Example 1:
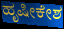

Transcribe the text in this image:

ಹೃಷೀಕೇಶ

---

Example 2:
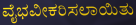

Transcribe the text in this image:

ವೈಭವೀಕರಿಸಲಾಯಿತು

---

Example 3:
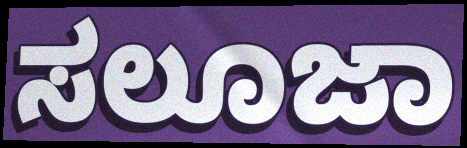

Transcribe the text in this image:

ಸಲೂಜಾ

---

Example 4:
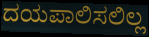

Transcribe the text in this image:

ದಯಪಾಲಿಸಲಿಲ್ಲ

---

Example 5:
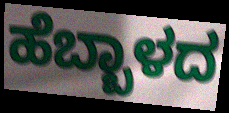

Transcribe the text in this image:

ಹೆಬ್ಬಾಳದ